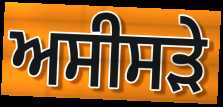
ਅਸੀਸੜੇ